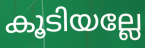
കൂടിയല്ലേ